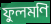
ফুলমণি